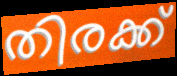
തിരക്ക്